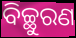
ବିଚ୍ଛୁରଣ